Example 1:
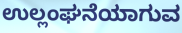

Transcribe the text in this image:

ಉಲ್ಲಂಘನೆಯಾಗುವ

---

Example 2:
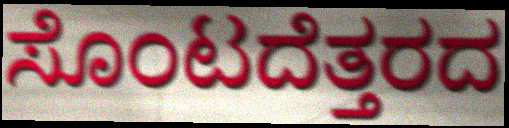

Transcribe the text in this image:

ಸೊಂಟದೆತ್ತರದ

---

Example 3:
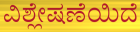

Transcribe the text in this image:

ವಿಶ್ಲೇಷಣೆಯಿದೆ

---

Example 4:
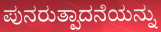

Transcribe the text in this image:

ಪುನರುತ್ಪಾದನೆಯನ್ನು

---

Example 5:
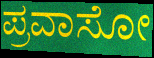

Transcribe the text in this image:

ಪ್ರವಾಸೋ